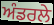
ਅੰਡਰਲੇ